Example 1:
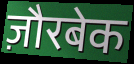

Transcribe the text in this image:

ज़ौरबेक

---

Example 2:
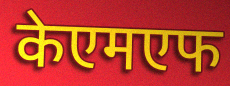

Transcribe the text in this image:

केएमएफ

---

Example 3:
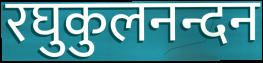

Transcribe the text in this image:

रघुकुलनन्दन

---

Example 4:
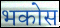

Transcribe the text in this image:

भकोस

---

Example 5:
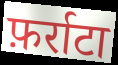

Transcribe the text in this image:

फ़र्राटा